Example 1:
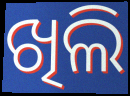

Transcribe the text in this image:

ଖିଲି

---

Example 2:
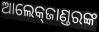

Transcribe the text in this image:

ଆଲେକ୍‌ଜାଣ୍ଡରଙ୍କ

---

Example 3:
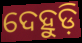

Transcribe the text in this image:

ଦେହୁଡ଼ି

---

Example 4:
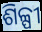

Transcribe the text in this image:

ଶିଳ୍ପୀ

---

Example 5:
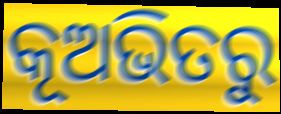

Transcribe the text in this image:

କୂଅଭିତରୁ